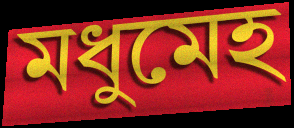
মধুমেহ